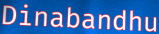
Dinabandhu